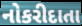
નોકરીદાતા